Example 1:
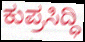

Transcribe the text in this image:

ಕುಪ್ರಸಿದ್ಧಿ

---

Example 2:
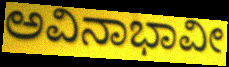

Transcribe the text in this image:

ಅವಿನಾಭಾವೀ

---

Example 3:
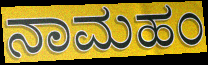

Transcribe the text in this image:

ನಾಮಹಂ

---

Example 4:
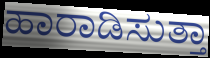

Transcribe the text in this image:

ಹಾರಾಡಿಸುತ್ತಾ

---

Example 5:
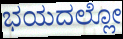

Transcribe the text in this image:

ಭಯದಲ್ಲೋ